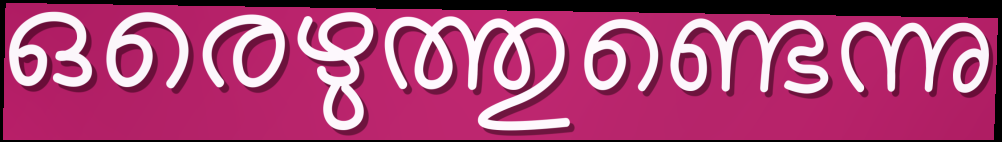
ഒരെഴുത്തുണ്ടെന്നു